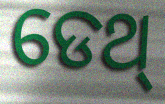
ଡେଥ୍